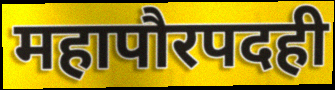
महापौरपदही